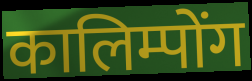
कालिम्पोंग